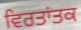
ਵਿਰਤਾਂਤਕ